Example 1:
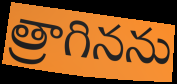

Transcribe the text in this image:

త్రాగినను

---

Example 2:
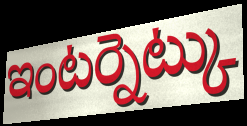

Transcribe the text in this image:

ఇంటర్నెట్కు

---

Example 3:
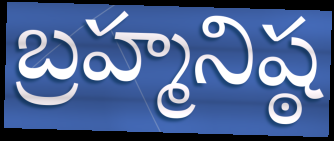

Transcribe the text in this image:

బ్రహ్మనిష్ఠ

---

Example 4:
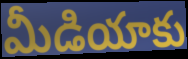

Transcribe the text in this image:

మీడియాకు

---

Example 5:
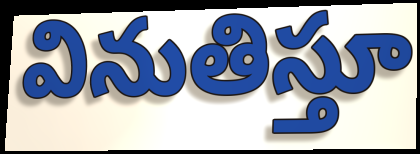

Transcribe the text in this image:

వినుతిస్తూ